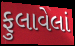
ફુલાવેલાં